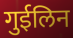
गुईलिन